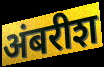
अंबरीश